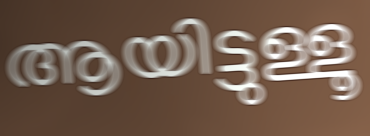
ആയിട്ടുള്ളൂ